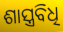
ଶାସ୍ତ୍ରବିଧି